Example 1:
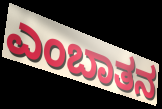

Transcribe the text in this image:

ಎಂಬಾತನ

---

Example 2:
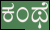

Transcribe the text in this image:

ಕಂಥೆ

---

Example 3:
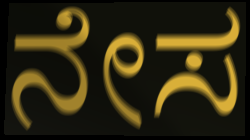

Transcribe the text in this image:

ನೇಸ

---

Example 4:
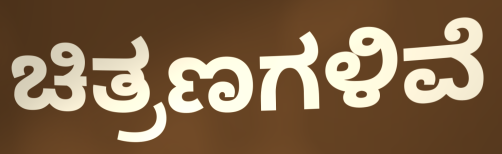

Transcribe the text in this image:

ಚಿತ್ರಣಗಳಿವೆ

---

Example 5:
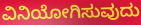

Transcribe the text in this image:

ವಿನಿಯೋಗಿಸುವುದು